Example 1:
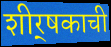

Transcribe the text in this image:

शीर्षकाची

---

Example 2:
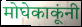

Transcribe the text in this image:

मोघेकाकूंनी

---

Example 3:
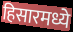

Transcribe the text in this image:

हिसारमध्ये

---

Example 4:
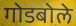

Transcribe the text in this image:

गोडबोले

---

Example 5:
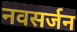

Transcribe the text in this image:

नवसर्जन